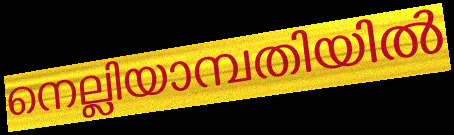
നെല്ലിയാമ്പതിയിൽ